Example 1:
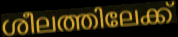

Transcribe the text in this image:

ശീലത്തിലേക്ക്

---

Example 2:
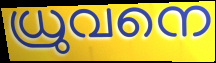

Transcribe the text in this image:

ധ്രുവനെ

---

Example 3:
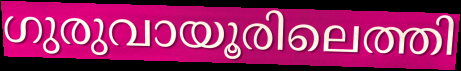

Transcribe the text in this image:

ഗുരുവായൂരിലെത്തി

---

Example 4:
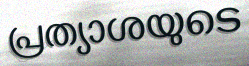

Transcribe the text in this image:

പ്രത്യാശയുടെ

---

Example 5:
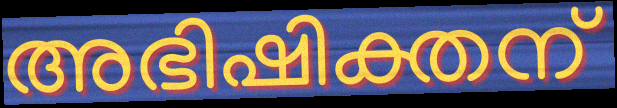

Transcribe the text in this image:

അഭിഷിക്തന്